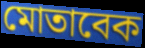
মোতাবেক